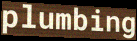
plumbing